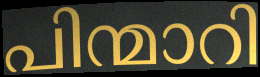
പിന്മാറി